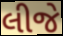
લીજે